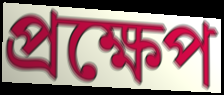
প্ৰক্ষেপ